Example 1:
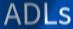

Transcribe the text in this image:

ADLs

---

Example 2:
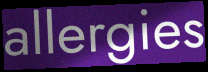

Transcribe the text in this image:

allergies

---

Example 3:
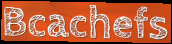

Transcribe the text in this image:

Bcachefs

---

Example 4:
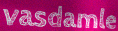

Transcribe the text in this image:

vasdamle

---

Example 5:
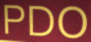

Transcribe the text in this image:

PDO